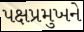
પક્ષપ્રમુખને